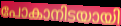
പോകാനിടയായി